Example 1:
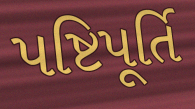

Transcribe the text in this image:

પષ્ટિપૂર્તિ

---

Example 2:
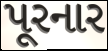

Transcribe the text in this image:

પૂરનાર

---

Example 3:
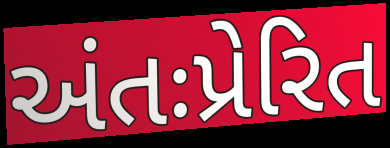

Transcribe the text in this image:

અંતઃપ્રેરિત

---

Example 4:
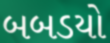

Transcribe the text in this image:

બબડયો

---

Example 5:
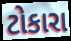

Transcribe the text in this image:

ટોકારા